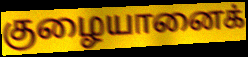
குழையானைக்